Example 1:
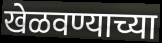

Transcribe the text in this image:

खेळवण्याच्या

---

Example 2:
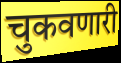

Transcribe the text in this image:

चुकवणारी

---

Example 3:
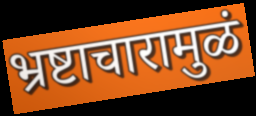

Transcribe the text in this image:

भ्रष्टाचारामुळं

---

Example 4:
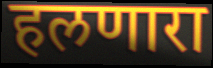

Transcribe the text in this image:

हलणारा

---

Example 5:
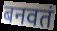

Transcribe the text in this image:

बनवतं